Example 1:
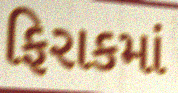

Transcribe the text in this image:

ફિરાકમાં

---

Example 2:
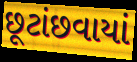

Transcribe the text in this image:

છૂટાંછવાયાં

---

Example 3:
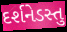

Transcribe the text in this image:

દર્શનેડસ્તુ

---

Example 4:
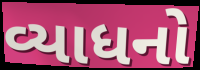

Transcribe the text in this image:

વ્યાધનો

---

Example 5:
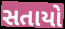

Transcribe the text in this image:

સતાયો